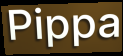
Pippa